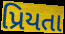
પ્રિયતા